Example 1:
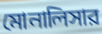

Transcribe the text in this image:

মোনালিসার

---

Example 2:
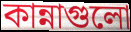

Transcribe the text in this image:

কান্নাগুলো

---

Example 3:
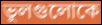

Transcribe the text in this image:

ভুলগুলোকে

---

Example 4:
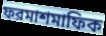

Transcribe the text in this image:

ফরমাশমাফিক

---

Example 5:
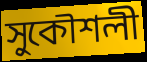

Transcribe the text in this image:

সুকৌশলী